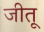
जीतू